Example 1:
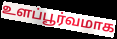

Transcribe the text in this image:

உளப்பூர்வமாக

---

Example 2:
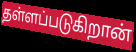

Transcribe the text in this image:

தள்ளப்படுகிறான்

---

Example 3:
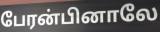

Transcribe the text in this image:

பேரன்பினாலே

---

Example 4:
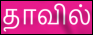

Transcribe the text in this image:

தாவில்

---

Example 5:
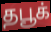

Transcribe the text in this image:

தபூக்